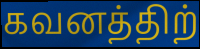
கவனத்திற்